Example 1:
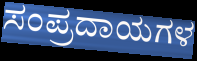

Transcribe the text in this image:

ಸಂಪ್ರದಾಯಗಳ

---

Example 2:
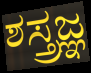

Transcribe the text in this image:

ಶಸ್ತ್ರಜ್ಞ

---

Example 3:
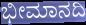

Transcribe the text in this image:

ಭೀಮಾನದಿ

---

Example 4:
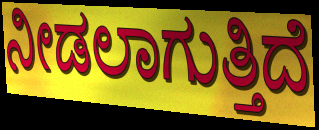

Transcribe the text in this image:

ನೀಡಲಾಗುತ್ತಿದೆ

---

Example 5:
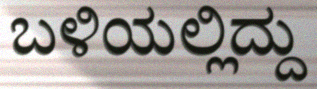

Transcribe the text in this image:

ಬಳಿಯಲ್ಲಿದ್ದು